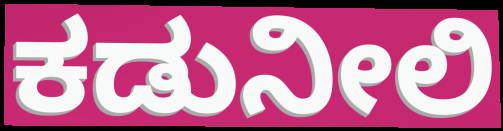
ಕಡುನೀಲಿ